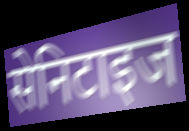
सेनिटाइज